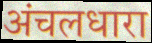
अंचलधारा